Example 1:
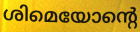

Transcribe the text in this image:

ശിമെയോന്റെ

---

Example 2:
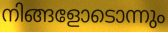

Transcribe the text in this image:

നിങ്ങളോടൊന്നും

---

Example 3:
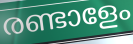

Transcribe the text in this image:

രണ്ടാളേം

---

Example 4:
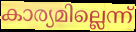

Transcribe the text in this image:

കാര്യമില്ലെന്ന്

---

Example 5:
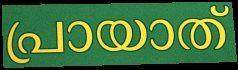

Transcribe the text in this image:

പ്രായാത്